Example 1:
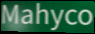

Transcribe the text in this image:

Mahyco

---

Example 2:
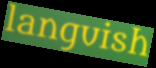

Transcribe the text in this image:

languish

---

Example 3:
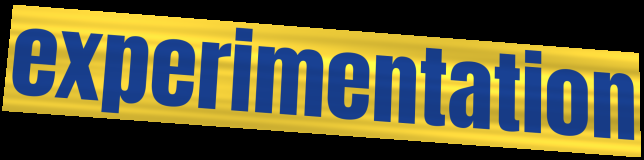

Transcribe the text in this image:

experimentation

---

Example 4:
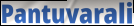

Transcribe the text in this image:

Pantuvarali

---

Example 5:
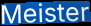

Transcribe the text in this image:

Meister